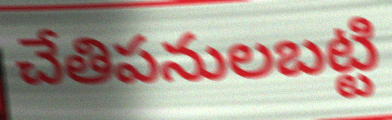
చేతిపనులబట్టి